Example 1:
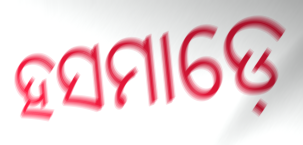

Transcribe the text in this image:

ହସମାଡ଼େ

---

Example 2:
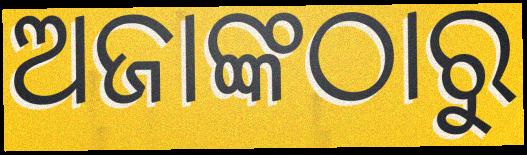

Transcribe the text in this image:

ଅଜାଙ୍କଠାରୁ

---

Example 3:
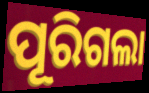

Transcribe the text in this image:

ପୂରିଗଲା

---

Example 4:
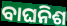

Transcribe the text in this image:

ବାଘନିଶ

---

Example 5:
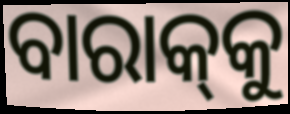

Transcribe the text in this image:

ବାରାକ୍‌କୁ